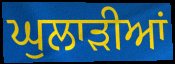
ਘੁਲਾੜੀਆਂ